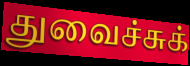
துவைச்சுக்